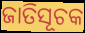
ଜାତିସୂଚକ